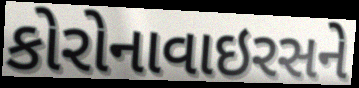
કોરોનાવાઇરસને